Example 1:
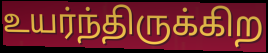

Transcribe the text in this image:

உயர்ந்திருக்கிற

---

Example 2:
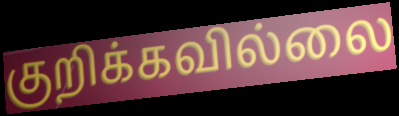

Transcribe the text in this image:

குறிக்கவில்லை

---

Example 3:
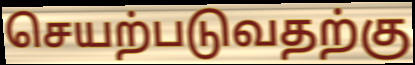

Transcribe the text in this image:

செயற்படுவதற்கு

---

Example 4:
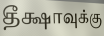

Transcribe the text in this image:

தீக்ஷாவுக்கு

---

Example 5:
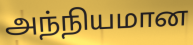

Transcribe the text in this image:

அந்நியமான